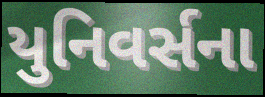
યુનિવર્સના